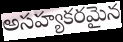
అసహ్యకరమైన